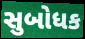
સુબોધક